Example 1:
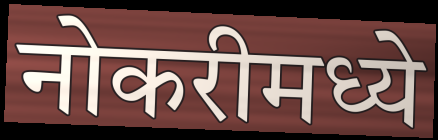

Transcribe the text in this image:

नोकरीमध्ये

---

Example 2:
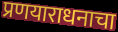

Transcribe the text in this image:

प्रणयाराधनाचा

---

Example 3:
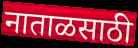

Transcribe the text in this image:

नाताळसाठी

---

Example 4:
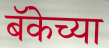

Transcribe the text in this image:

बॅकेच्या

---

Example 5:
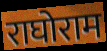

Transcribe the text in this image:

राघोराम